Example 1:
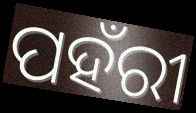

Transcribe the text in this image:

ପହଁରୀ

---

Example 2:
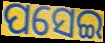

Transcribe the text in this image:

ପସେଇ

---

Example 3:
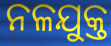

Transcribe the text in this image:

ନଳଯୁକ୍ତ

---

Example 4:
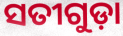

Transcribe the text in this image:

ସତୀଗୁଡ଼ା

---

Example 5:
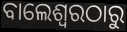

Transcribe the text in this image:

ବାଲେଶ୍ବରଠାରୁ